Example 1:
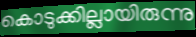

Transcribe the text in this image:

കൊടുക്കില്ലായിരുന്നു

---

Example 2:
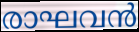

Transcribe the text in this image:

രാഘവൻ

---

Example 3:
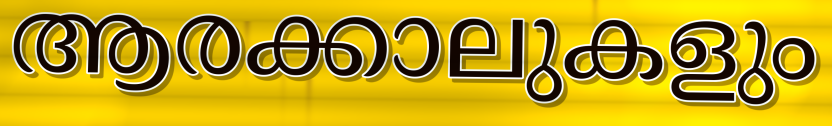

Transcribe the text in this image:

ആരക്കാലുകളും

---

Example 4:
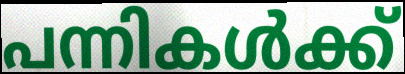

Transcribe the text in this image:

പന്നികൾക്ക്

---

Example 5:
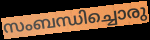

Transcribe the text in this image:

സംബന്ധിച്ചൊരു